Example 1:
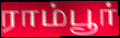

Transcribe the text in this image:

ராம்பூர்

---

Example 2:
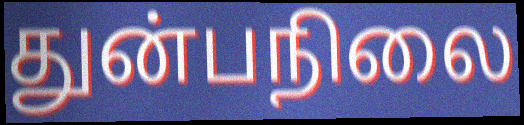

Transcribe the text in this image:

துன்பநிலை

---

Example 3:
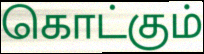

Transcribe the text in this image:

கொட்கும்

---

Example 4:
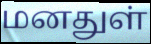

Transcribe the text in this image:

மனதுள்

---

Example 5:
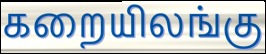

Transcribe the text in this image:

கறையிலங்கு